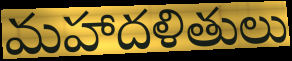
మహాదళితులు